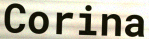
Corina